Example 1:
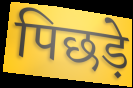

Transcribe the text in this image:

पिछड़े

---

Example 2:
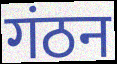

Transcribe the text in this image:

गंठन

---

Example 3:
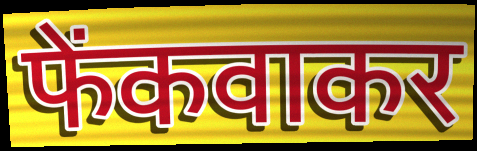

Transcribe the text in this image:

फेंकवाकर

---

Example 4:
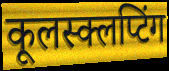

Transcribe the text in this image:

कूलस्क्लप्टिंग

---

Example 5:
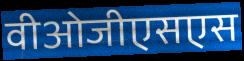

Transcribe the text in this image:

वीओजीएसएस